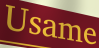
Usame